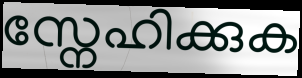
സ്നേഹിക്കുക